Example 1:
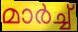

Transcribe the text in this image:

മാർച്ച്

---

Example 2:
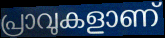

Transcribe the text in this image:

പ്രാവുകളാണ്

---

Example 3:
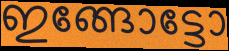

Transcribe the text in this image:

ഇങ്ങോട്ടോ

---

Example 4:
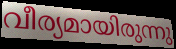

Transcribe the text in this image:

വീര്യമായിരുന്നു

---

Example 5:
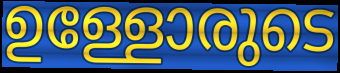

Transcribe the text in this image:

ഉള്ളോരുടെ